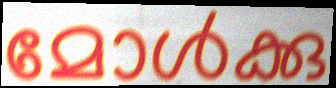
മോൾക്കു